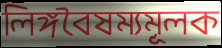
লিঙ্গবৈষম্যমূলক